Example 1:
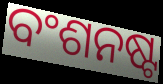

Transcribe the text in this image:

ବଂଶନଷ୍ଟ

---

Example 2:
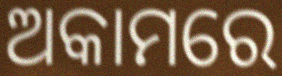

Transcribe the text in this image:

ଅକାମରେ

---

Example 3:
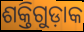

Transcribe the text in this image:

ଶକ୍ତିଗୁଡ଼ାକ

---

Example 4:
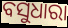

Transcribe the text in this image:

ବସୁଧାରା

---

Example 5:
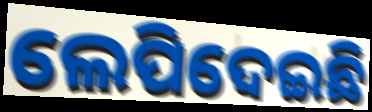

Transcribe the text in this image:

ଲେପିଦେଇଛି